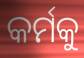
କର୍ମକୁ